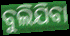
ବୁଲିଯିବା